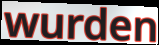
wurden